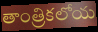
తాంత్రికలోయ